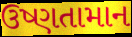
ઉષ્ણતામાન